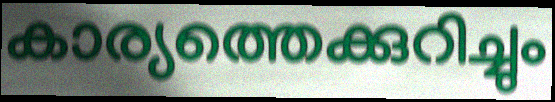
കാര്യത്തെക്കുറിച്ചും